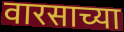
वारसाच्या